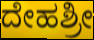
ದೇಹಶ್ರೀ